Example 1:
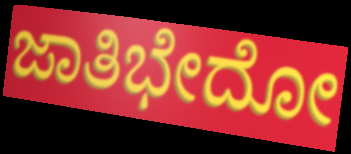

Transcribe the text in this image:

ಜಾತಿಭೇದೋ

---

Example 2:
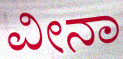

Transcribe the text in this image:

ವೀನಾ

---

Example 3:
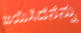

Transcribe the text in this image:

ಜಯಿಸಿದೆನೆನ್ನು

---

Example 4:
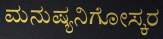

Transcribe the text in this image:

ಮನುಷ್ಯನಿಗೋಸ್ಕರ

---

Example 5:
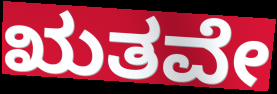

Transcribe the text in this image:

ಋತವೇ